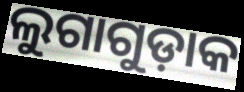
ଲୁଗାଗୁଡ଼ାକ